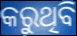
କରୁଥିବି